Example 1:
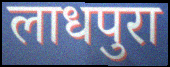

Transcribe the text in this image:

लाधपुरा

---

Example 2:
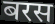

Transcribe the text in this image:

बरस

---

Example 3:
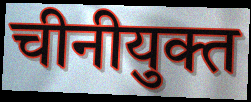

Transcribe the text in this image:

चीनीयुक्त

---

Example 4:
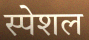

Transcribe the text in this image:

स्‍पेशल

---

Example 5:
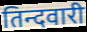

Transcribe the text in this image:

तिन्दवारी